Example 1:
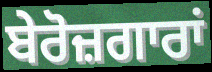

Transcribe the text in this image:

ਬੇਰੋਜ਼ਗਾਰਾਂ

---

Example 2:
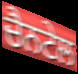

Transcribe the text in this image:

ਚੈਨਟੇਲ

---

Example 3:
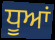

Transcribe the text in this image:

ਧੂਆਂ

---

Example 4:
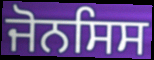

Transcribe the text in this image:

ਜੋਨਸਿਸ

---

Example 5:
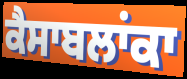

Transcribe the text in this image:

ਕੈਸਾਬਲਾਂਕਾ